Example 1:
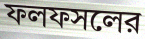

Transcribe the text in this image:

ফলফসলের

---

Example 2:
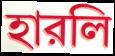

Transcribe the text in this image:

হারলি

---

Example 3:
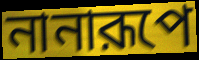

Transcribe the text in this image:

নানারূপে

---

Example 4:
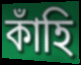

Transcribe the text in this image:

কাঁহি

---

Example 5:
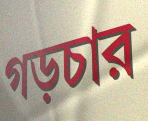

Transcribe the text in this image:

গড়চার